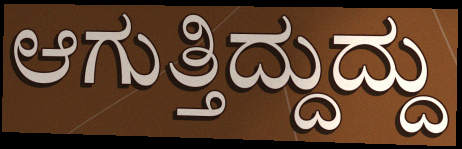
ಆಗುತ್ತಿದ್ದುದ್ದು